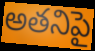
అతనిపై